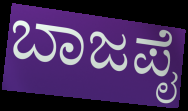
ಬಾಜಪೈ